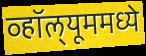
व्हॉल्यूममध्ये